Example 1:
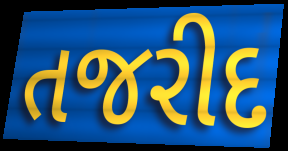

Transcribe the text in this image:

તજરીદ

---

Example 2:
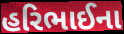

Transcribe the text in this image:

હરિભાઈના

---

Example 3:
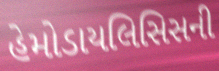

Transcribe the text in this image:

હેમોડાયલિસિસની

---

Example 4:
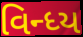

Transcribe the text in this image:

વિન્ધ્ય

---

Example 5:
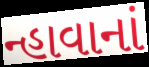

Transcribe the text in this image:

ન્હાવાનાં